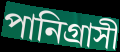
পানিগ্রাসী